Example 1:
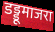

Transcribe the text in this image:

डड्डूमाजरा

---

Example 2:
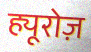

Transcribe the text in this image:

ह्यूरोज़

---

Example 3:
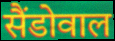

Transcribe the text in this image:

सैंडोवाल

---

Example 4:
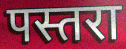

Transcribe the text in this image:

पस्तरा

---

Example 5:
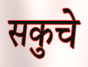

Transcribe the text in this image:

सकुचे